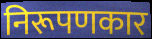
निरूपणकार